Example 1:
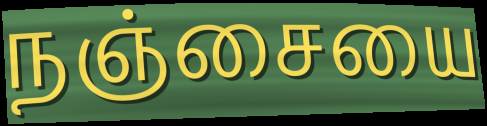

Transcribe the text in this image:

நஞ்சையை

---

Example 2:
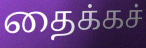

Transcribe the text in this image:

தைக்கச்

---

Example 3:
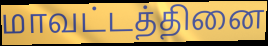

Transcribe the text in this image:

மாவட்டத்தினை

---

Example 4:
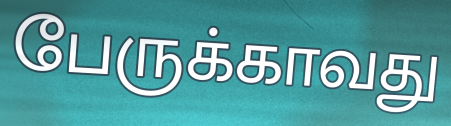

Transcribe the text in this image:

பேருக்காவது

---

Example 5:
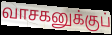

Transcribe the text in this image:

வாசகனுக்குப்